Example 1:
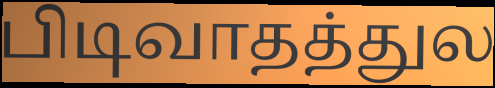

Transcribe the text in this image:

பிடிவாதத்துல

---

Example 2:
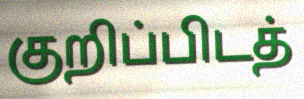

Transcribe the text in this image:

குறிப்பிடத்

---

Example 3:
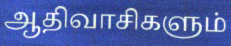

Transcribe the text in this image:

ஆதிவாசிகளும்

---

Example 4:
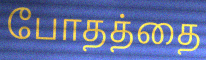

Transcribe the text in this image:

போதத்தை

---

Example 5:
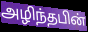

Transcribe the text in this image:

அழிந்தபின்